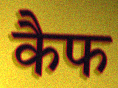
कैफ